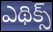
ఎథిక్స్